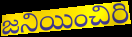
జనియించిరి